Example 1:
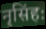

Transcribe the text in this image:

नृसिंहः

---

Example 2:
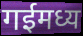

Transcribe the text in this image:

गईमध्य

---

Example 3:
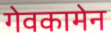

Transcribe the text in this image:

गेवकामेन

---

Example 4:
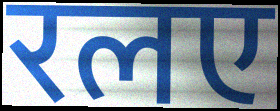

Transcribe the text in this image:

रलए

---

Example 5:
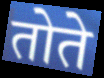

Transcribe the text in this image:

तोते